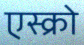
एस्क्रो